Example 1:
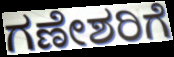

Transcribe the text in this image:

ಗಣೇಶರಿಗೆ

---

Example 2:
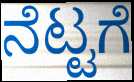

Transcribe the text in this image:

ನೆಟ್ಟಗೆ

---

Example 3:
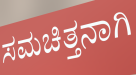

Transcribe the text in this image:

ಸಮಚಿತ್ತನಾಗಿ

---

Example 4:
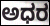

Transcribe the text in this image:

ಅಧರ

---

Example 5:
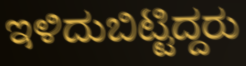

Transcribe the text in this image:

ಇಳಿದುಬಿಟ್ಟಿದ್ದರು